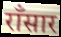
राँसार